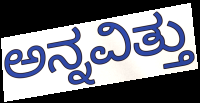
ಅನ್ನವಿತ್ತು